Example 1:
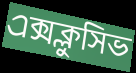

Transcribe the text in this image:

এক্সক্লুসিভ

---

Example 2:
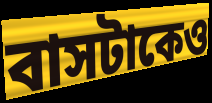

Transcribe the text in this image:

বাসটাকেও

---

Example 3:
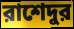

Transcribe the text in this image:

রাশেদুর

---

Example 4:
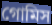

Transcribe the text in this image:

গোমিস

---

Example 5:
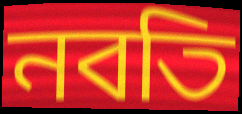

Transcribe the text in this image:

নবতি